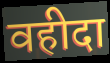
वहीदा